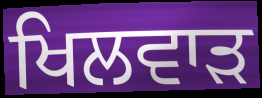
ਖਿਲਵਾੜ